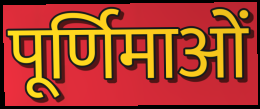
पूर्णिमाओं